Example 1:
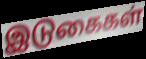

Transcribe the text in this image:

இடுகைகள்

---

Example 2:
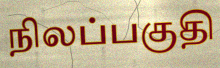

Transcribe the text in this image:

நிலப்பகுதி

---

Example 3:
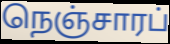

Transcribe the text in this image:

நெஞ்சாரப்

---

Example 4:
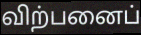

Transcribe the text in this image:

விற்பனைப்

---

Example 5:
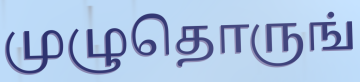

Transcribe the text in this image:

முழுதொருங்